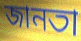
জানতা